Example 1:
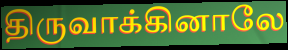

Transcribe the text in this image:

திருவாக்கினாலே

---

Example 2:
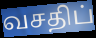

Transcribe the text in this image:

வசதிப்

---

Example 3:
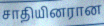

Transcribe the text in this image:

சாதியினரான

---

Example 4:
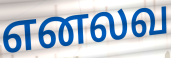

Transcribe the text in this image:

எனலவ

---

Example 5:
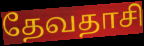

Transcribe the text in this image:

தேவதாசி